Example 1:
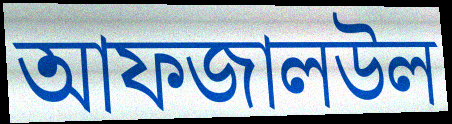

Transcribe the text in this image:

আফজালউল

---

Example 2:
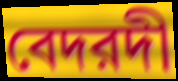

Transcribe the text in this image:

বেদরদী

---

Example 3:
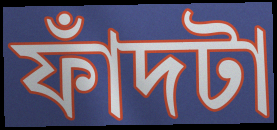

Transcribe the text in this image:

ফাঁদটা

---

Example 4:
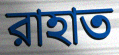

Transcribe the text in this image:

রাহাত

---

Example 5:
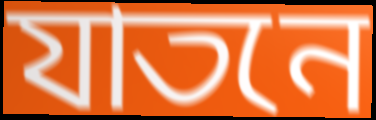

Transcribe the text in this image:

যাতনে